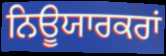
ਨਿਊਯਾਰਕਰਾਂ